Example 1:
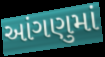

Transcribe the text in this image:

આંગણુમાં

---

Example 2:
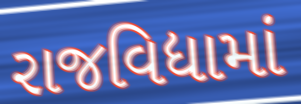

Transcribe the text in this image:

રાજવિદ્યામાં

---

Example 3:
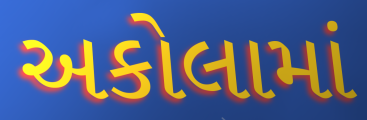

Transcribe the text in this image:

અકોલામાં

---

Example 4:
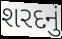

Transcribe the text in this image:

શરદનું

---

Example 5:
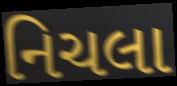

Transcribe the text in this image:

નિચલા